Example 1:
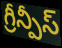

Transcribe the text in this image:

గ్రీన్పీస్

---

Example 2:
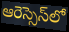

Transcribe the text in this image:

ఆరెస్సెస్‌లో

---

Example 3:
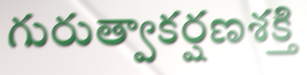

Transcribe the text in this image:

గురుత్వాకర్షణశక్తి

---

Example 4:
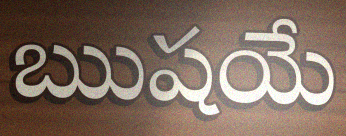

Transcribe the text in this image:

ఋషయే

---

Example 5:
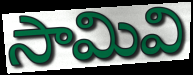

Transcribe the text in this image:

సామివి